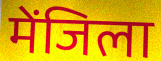
मेंजिला